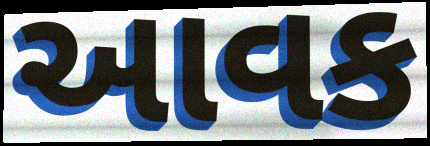
આવક